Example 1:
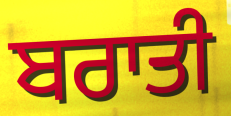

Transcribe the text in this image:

ਬਰਾਤੀ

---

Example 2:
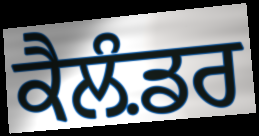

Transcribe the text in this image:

ਕੈਲ਼ੰਡਰ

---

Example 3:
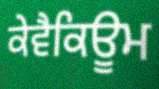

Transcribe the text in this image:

ਕੇਵੈਕਿਊਮ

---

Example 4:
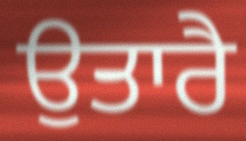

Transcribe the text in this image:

ਉਤਾਰੈ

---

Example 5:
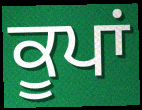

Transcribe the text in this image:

ਕੂਪਾਂ